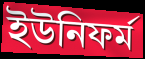
ইউনিফৰ্ম